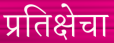
प्रतिक्षेचा